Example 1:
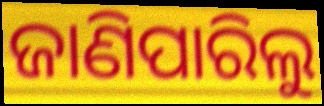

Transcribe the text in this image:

ଜାଣିପାରିଲୁ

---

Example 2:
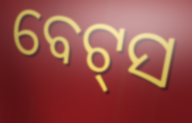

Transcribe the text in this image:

ବେଟ୍‌ସ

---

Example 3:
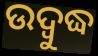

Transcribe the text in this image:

ଉଦ୍ୱୁଦ୍ଧ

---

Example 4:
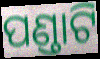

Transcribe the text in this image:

ପଣ୍ଡାଟି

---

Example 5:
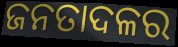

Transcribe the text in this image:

ଜନତାଦଳର